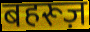
बहरूज़